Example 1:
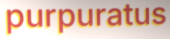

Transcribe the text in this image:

purpuratus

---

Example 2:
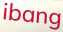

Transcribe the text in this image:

ibang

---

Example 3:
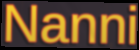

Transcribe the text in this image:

Nanni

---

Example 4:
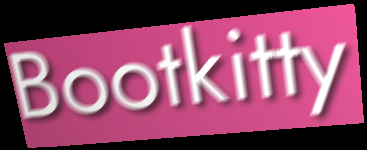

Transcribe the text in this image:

Bootkitty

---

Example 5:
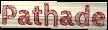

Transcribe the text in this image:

Pathade